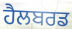
ਹੈਲਬਰਡ